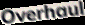
Overhaul